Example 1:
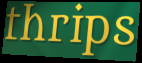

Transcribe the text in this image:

thrips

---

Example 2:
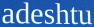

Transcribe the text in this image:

adeshtu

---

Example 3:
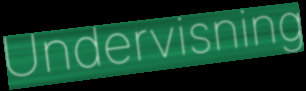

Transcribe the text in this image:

Undervisning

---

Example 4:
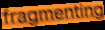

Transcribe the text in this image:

fragmenting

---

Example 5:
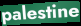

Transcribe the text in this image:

palestine